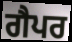
ਗੈਪਰ